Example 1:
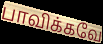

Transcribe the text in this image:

பாவிக்கவே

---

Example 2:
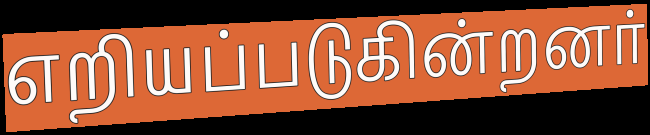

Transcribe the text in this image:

எறியப்படுகின்றனர்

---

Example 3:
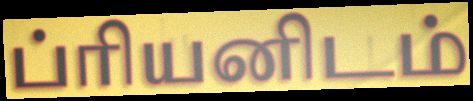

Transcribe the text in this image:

ப்ரியனிடம்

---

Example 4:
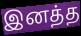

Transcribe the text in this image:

இனத்த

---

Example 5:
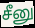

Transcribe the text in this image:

சீனு